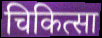
चिकित्सा